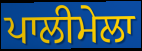
ਪਾਲੀਮੇਲਾ